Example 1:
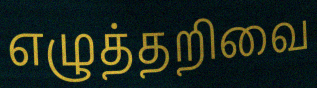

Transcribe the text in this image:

எழுத்தறிவை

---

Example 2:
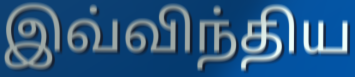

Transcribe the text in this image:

இவ்விந்திய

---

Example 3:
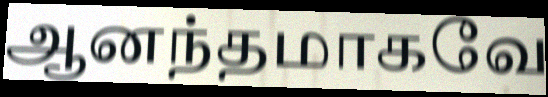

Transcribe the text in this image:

ஆனந்தமாகவே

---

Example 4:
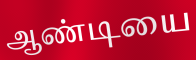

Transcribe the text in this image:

ஆண்டியை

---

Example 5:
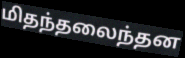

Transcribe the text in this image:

மிதந்தலைந்தன